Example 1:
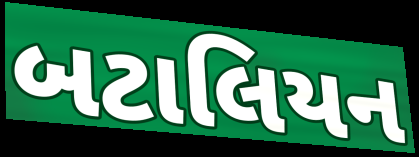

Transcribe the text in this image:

બટાલિયન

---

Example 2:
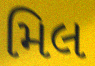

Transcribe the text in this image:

મિલ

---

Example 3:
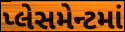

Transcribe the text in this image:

પ્લેસમેન્ટમાં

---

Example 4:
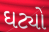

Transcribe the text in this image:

ઘટ્યો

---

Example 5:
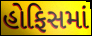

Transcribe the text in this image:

હોફિસમાં